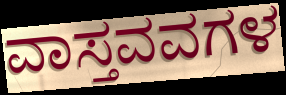
ವಾಸ್ತವವಗಳ